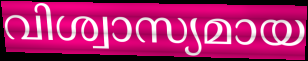
വിശ്വാസ്യമായ